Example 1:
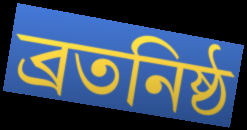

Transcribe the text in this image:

ব্রতনিষ্ঠ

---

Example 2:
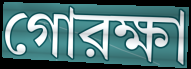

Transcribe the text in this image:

গোরক্ষা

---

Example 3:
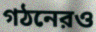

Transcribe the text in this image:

গঠনেরও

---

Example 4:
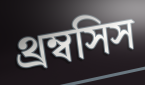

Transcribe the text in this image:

থ্রম্বসিস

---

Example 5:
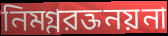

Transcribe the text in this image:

নিমগ্নরক্তনয়না